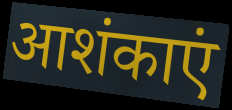
आशंकाएं